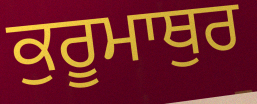
ਕੁਰੂਮਾਥੁਰ